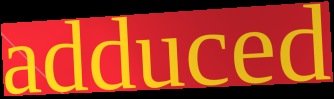
adduced